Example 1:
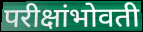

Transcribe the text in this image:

परीक्षांभोवती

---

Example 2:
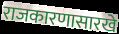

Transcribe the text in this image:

राजकारणासारखे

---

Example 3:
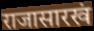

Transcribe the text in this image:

राजासारखं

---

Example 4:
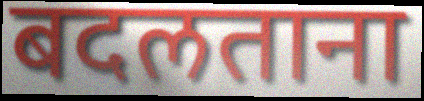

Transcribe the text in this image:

बदलताना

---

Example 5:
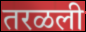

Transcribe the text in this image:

तरळली